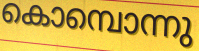
കൊമ്പൊന്നു